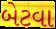
બેટવા